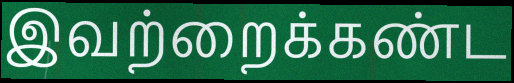
இவற்றைக்கண்ட